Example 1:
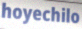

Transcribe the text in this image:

hoyechilo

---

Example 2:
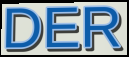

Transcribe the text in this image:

DER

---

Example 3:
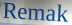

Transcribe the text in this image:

Remak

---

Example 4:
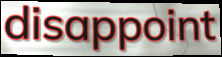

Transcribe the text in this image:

disappoint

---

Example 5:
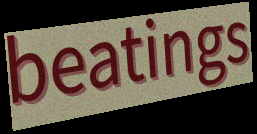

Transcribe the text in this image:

beatings